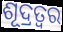
ଶୂଦ୍ରତ୍ଵର